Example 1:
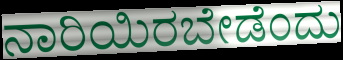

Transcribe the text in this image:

ನಾರಿಯಿರಬೇಡೆಂದು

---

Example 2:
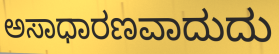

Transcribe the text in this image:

ಅಸಾಧಾರಣವಾದುದು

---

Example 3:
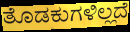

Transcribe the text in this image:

ತೊಡಕುಗಳಿಲ್ಲದೆ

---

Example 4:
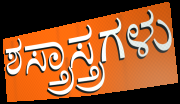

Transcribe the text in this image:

ಶಸ್ತ್ರಾಸ್ತ್ರಗಳು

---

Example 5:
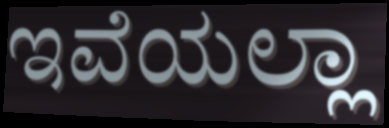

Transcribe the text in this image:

ಇವೆಯಲ್ಲಾ